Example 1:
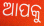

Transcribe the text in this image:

ଆପକୁ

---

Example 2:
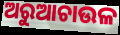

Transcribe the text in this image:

ଅରୁଆଚାଉଳ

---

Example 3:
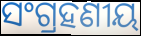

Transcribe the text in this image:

ସଂଗ୍ରହଣୀୟ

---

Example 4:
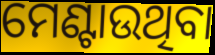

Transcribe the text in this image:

ମେଣ୍ଟାଉଥିବା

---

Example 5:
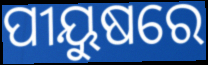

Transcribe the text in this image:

ପୀୟୁଷରେ